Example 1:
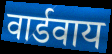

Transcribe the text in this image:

वार्डवाय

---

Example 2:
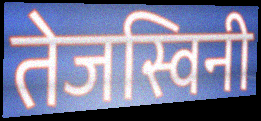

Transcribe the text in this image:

तेजस्विनी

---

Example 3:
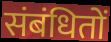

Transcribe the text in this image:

संबंधितों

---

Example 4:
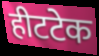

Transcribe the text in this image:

हीटटेक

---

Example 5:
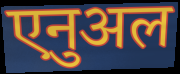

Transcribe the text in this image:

एनुअल